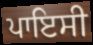
ਪਾਇਸੀ